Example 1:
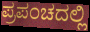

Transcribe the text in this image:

ಪ್ರಪಂಚದಲ್ಲಿ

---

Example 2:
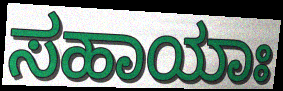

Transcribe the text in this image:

ಸಹಾಯಾಃ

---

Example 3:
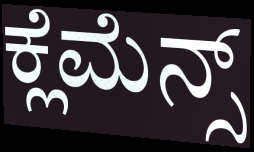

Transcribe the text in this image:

ಕ್ಲೆಮೆನ್ಸ್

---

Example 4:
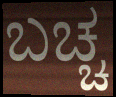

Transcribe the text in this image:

ಬಚ್ಚ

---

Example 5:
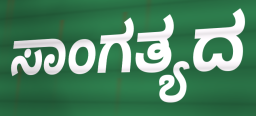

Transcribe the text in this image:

ಸಾಂಗತ್ಯದ